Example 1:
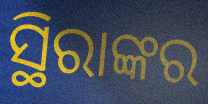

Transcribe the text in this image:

ସ୍ଥିରାଙ୍କର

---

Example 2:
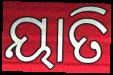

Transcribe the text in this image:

ୟାତି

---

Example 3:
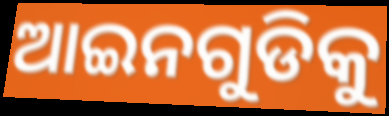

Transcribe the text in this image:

ଆଇନଗୁଡିକୁ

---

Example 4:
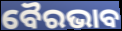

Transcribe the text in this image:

ବୈରଭାବ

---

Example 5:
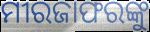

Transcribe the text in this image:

ମୀରଜାଫରଙ୍କୁ